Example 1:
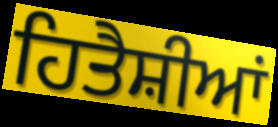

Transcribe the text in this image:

ਹਿਤੈਸ਼ੀਆਂ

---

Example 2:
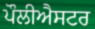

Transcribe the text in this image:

ਪੌਲੀਐਸਟਰ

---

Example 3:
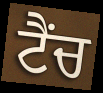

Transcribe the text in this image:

ਟੈਂਚ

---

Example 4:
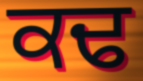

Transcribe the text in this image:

ਕਢ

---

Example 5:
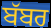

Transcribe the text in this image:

ਬੱਬਰ